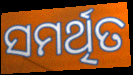
ସମର୍ଥିତ